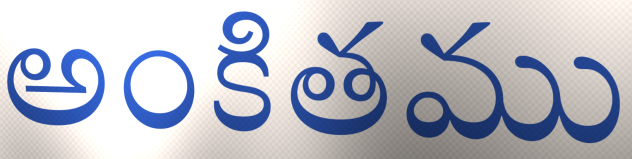
అంకితము